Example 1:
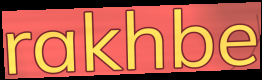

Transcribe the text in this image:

rakhbe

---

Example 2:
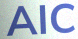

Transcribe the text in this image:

AIC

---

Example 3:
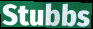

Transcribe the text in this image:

Stubbs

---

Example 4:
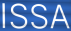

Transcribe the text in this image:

ISSA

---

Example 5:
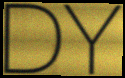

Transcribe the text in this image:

DY